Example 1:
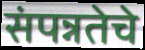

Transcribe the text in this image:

संपन्नतेचे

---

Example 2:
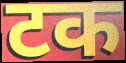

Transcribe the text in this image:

टक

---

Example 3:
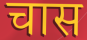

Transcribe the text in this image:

चास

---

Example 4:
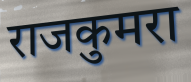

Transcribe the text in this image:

राजकुमरा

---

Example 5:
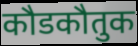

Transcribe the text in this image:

कौडकौतुक